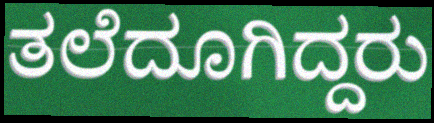
ತಲೆದೂಗಿದ್ದರು